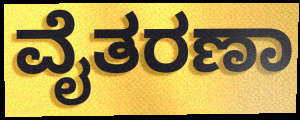
ವೈತರಣಾ